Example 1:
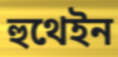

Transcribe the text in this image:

হুথেইন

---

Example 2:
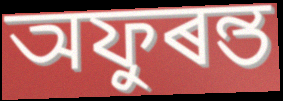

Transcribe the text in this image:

অফুৰন্ত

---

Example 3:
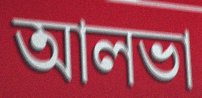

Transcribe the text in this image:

আলভা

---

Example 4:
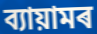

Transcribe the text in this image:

ব্যায়ামৰ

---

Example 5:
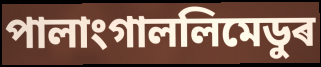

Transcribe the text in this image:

পালাংগাললিমেডুৰ